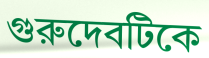
গুরুদেবটিকে